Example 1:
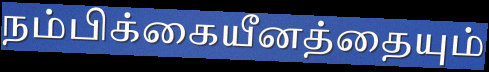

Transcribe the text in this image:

நம்பிக்கையீனத்தையும்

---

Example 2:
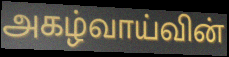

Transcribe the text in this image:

அகழ்வாய்வின்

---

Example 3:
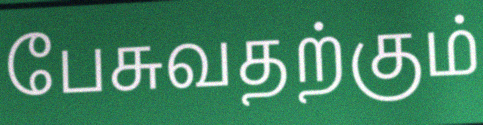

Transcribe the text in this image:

பேசுவதற்கும்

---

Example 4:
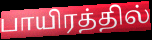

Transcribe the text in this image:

பாயிரத்தில்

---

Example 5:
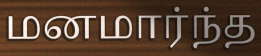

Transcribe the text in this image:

மனமார்ந்த